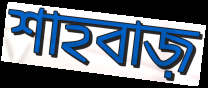
শাহবাজ়